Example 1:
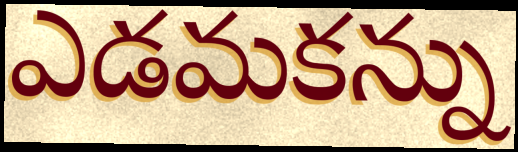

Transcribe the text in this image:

ఎడమకన్ను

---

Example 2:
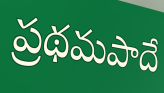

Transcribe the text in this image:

ప్రథమపాదే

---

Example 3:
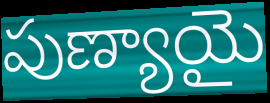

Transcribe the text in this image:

పుణ్యాయై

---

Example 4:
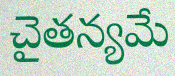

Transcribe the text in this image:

చైతన్యమే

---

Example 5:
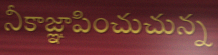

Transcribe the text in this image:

నీకాజ్ఞాపించుచున్న